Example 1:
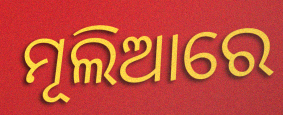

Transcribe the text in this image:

ମୂଲିଆରେ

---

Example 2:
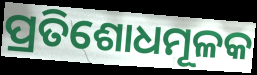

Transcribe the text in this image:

ପ୍ରତିଶୋଧମୂଳକ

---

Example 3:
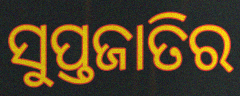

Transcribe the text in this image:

ସୁପ୍ତଜାତିର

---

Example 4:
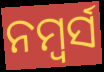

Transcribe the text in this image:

ନମ୍ୱର୍ସ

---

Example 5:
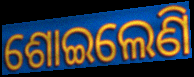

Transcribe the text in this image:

ଶୋଇଲେଣି